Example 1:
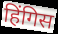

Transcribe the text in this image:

हिंगिस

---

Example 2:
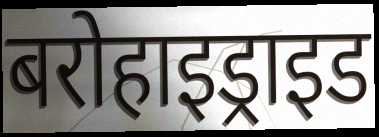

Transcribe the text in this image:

बरोहाइड्राइड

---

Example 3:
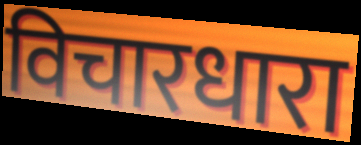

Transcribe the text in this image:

विचारधारा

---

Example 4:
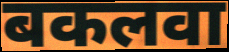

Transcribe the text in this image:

बकलवा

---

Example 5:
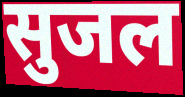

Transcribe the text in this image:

सुजल